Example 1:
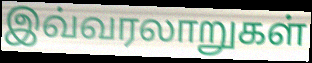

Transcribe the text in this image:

இவ்வரலாறுகள்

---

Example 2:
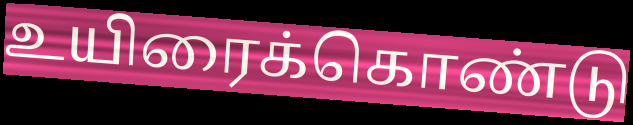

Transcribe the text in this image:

உயிரைக்கொண்டு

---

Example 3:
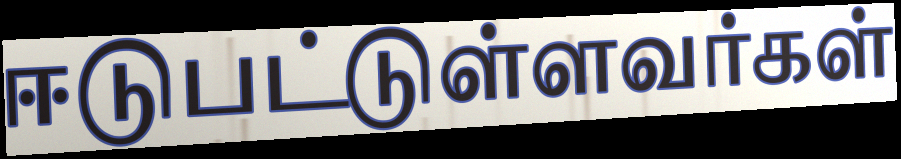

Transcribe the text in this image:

ஈடுபட்டுள்ளவர்கள்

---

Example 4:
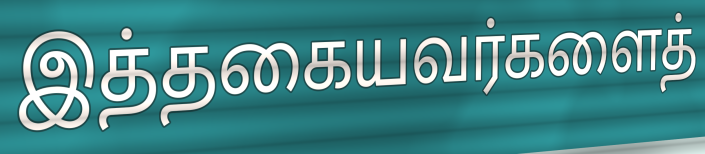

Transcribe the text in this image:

இத்தகையவர்களைத்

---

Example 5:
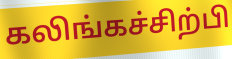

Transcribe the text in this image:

கலிங்கச்சிற்பி